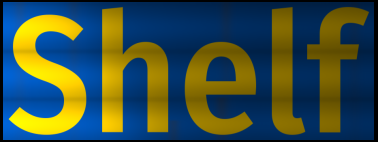
Shelf